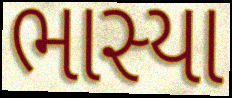
ભાસ્યા